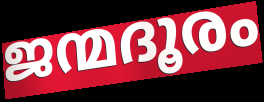
ജന്മദൂരം